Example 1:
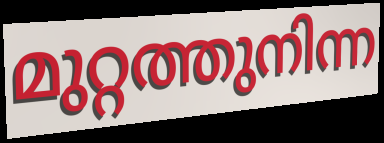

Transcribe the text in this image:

മുറ്റത്തുനിന്ന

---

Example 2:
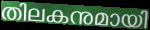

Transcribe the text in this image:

തിലകനുമായി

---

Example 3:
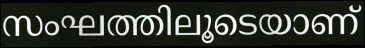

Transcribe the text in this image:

സംഘത്തിലൂടെയാണ്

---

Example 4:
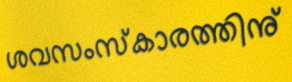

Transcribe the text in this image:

ശവസംസ്കാരത്തിനു്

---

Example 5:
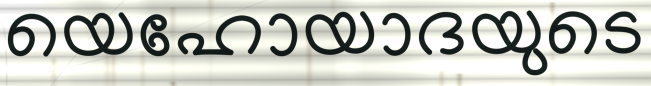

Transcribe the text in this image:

യെഹോയാദയുടെ